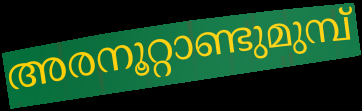
അരനൂറ്റാണ്ടുമുമ്പ്